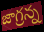
జాగ్రన్న